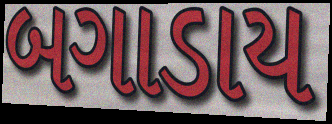
બગાડાય